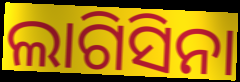
ଲାଗିସିନା